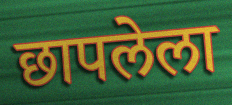
छापलेला